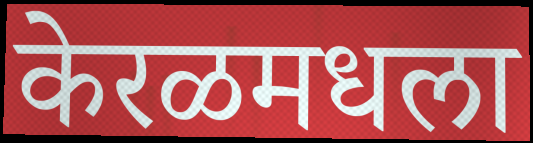
केरळमधला